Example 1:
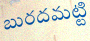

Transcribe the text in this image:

బురదమట్టి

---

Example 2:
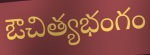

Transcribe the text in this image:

ఔచిత్యభంగం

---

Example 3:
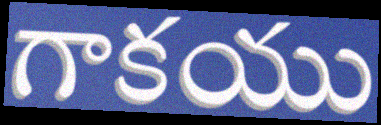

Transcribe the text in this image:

గాకయు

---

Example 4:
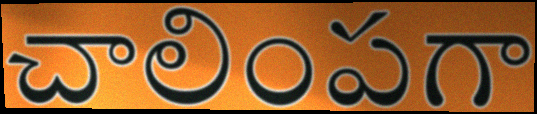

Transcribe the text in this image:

చాలింపగా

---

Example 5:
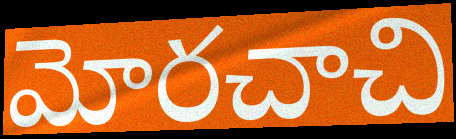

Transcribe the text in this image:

మోరచాచి